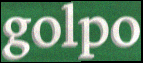
golpo